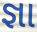
જ્ઞા